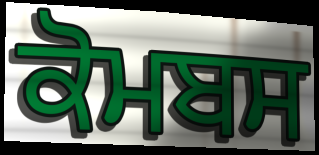
ਕੋਮਬਸ